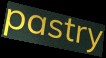
pastry